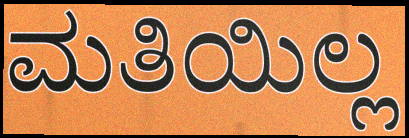
ಮತಿಯಿಲ್ಲ